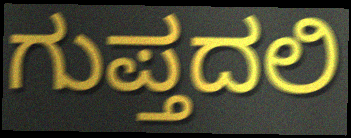
ಗುಪ್ತದಲಿ